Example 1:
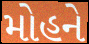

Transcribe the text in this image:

મોહને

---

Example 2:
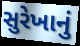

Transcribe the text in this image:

સુરેખાનું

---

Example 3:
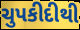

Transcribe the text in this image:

ચુપકીદીથી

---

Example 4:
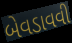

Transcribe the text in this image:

બેવડાવવી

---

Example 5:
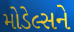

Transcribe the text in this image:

મોડેલ્સને